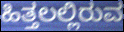
ಹಿತ್ತಲಲ್ಲಿರುವ